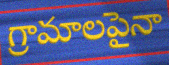
గ్రామాలపైనా